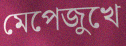
মেপেজুখে